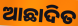
ଆଛାଦିତ